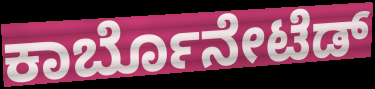
ಕಾರ್ಬೊನೇಟೆಡ್